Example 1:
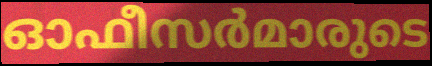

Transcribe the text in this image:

ഓഫീസർമാരുടെ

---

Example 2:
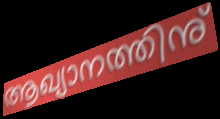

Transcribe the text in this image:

ആഖ്യാനത്തിനു്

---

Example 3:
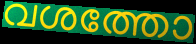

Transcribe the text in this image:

വശത്തോ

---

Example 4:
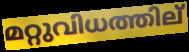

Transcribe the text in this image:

മറ്റുവിധത്തില്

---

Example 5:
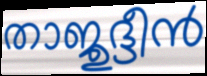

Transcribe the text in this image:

താജുദ്ദീൻ